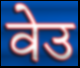
वेउ